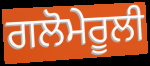
ਗਲੋਮੇਰੂਲੀ